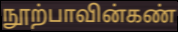
நூற்பாவின்கண்